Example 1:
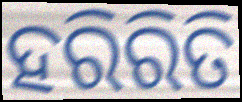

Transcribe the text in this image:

ହରିରିତି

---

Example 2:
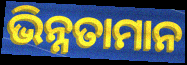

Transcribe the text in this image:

ଭିନ୍ନତାମାନ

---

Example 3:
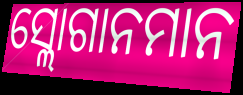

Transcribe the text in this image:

ସ୍ଲୋଗାନମାନ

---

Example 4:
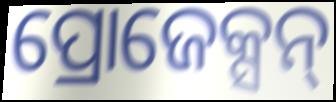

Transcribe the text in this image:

ପ୍ରୋଜେକ୍ସନ୍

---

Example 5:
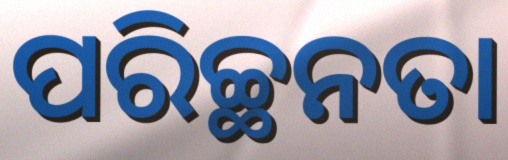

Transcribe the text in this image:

ପରିଚ୍ଛନତା